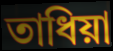
তাধিয়া